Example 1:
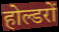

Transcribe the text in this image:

होल्डरों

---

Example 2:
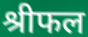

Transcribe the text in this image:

श्रीफल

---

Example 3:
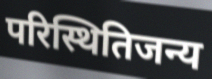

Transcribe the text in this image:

परिस्थितिजन्य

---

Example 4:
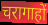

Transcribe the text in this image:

चरागाहों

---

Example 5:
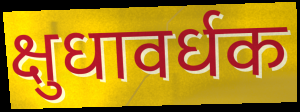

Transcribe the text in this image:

क्षुधावर्धक